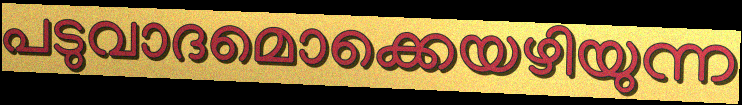
പടുവാദമൊക്കെയഴിയുന്ന